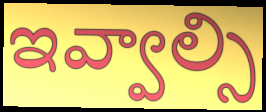
ఇవ్వాల్సి